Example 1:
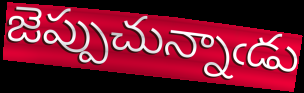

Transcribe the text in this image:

జెప్పుచున్నాఁడు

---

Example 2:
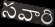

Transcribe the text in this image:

సవారి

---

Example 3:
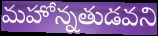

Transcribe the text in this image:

మహోన్నతుడవని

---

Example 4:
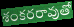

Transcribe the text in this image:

శంకరరావుతో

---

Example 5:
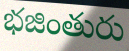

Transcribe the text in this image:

భజింతురు